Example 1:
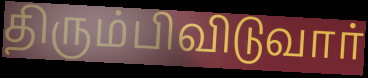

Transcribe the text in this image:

திரும்பிவிடுவார்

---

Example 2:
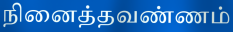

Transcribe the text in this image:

நினைத்தவண்ணம்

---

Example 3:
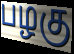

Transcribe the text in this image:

பழகு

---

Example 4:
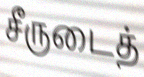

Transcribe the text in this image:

சீருடைத்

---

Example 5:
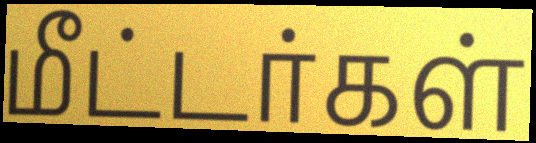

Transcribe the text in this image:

மீட்டர்கள்